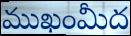
ముఖంమీద